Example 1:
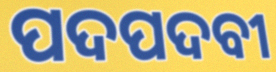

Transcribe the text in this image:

ପଦପଦବୀ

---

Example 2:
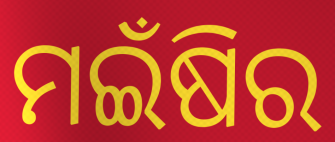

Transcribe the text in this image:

ମଇଁଷିର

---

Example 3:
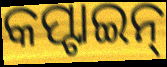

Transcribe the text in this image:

କପ୍ଟାଇନ୍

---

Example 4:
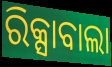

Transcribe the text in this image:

ରିକ୍ସାବାଲା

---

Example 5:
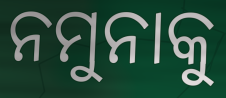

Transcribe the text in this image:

ନମୁନାକୁ